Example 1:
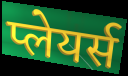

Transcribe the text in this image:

प्लेयर्स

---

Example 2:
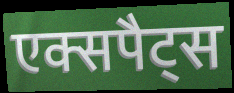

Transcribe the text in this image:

एक्सपैट्स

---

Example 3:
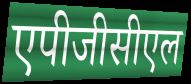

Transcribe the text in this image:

एपीजीसीएल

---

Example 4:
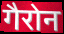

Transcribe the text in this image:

गैरोन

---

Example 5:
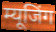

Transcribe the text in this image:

म्यूजिंग